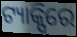
ଟ୍ୟାକ୍ସିରେ